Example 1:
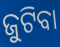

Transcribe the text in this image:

ଜୁଟିବା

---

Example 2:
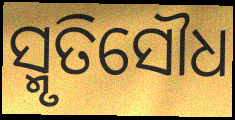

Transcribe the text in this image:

ସ୍ମୃତିସୌଧ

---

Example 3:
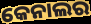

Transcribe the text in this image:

କେନାଲର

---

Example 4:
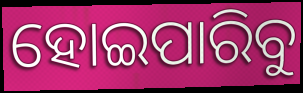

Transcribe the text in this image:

ହୋଇପାରିବୁ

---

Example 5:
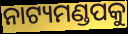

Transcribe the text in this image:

ନାଟ୍ୟମଣ୍ଡପକୁ